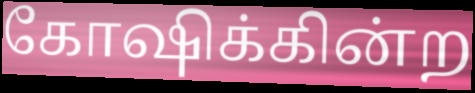
கோஷிக்கின்ற